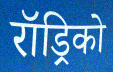
रॉड्रिको